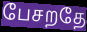
பேசறதே